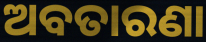
ଅବତାରଣା